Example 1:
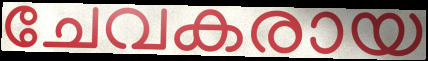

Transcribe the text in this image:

ചേവകരായ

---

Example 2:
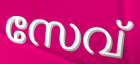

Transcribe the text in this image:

സേവ്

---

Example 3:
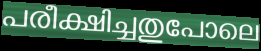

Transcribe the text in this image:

പരീക്ഷിച്ചതുപോലെ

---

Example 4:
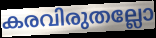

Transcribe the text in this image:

കരവിരുതല്ലോ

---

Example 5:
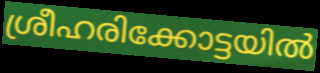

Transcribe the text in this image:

ശ്രീഹരിക്കോട്ടയിൽ